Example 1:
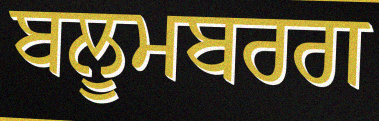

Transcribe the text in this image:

ਬਲੂਮਬਰਗ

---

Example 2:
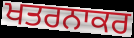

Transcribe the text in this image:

ਖਤਰਨਾਕਰ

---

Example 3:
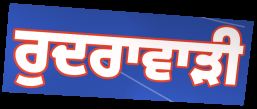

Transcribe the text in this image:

ਰੁਦਰਾਵਾੜੀ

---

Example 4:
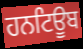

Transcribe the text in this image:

ਹਨਟਿਊਬ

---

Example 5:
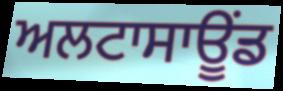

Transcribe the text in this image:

ਅਲਟਾਸਾਊਂਡ